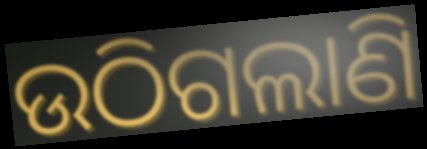
ଉଠିଗଲାଣି